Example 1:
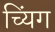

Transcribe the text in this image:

च्यिंग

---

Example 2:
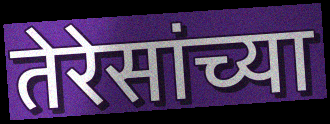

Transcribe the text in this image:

तेरेसांच्या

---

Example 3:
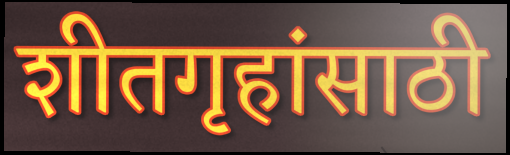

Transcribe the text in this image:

शीतगृहांसाठी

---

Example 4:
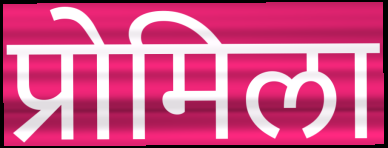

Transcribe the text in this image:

प्रोमिला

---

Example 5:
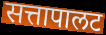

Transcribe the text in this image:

सत्तापालट